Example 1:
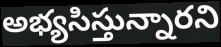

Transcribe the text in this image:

అభ్యసిస్తున్నారని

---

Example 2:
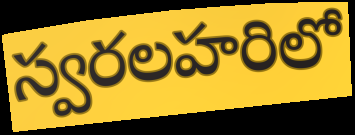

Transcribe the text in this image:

స్వరలహరిలో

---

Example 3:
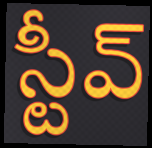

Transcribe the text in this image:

స్టీవ్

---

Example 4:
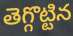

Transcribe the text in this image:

తెగ్గొట్టిన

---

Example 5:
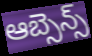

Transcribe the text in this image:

ఆబ్సెన్స్